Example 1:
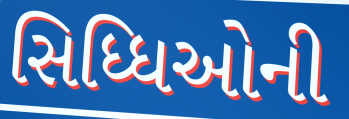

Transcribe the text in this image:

સિધ્ધિઓની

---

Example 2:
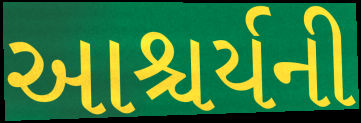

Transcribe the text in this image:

આશ્ચર્યની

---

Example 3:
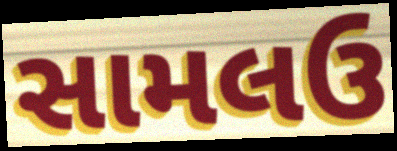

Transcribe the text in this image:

સામલઉ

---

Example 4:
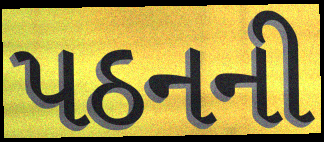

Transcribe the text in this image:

પઠનની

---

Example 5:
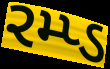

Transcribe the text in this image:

રમ્પ્ડ